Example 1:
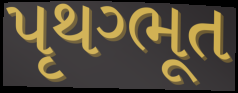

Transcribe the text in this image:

પૃથગ્ભૂત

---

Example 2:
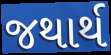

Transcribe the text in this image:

જથાર્થ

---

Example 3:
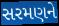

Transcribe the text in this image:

સરમણને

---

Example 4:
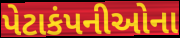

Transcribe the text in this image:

પેટાકંપનીઓના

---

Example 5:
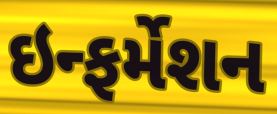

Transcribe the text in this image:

ઇન્ફર્મેશન